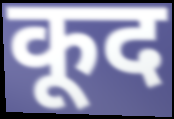
कूद